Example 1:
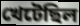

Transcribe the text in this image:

খেটেছিল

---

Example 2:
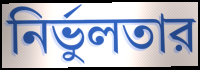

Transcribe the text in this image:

নির্ভুলতার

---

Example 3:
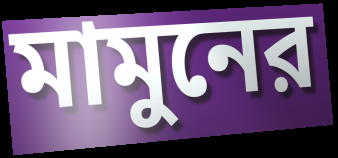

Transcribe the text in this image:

মামুনের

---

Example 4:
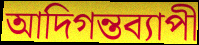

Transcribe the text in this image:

আদিগন্তব্যাপী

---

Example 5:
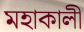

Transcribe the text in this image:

মহাকালী